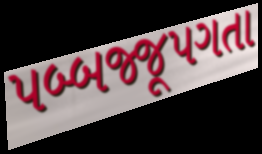
પબ્બજ્જૂપગતા